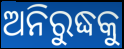
ଅନିରୁଦ୍ଧକୁ